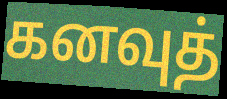
கனவுத்